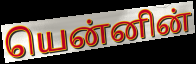
யென்னின்